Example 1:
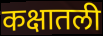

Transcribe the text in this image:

कक्षातली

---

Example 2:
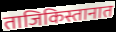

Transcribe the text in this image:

ताजिकिस्तानात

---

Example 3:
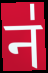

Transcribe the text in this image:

न॑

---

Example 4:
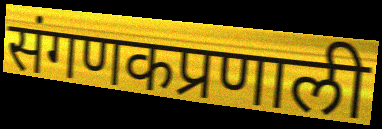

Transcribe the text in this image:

संगणकप्रणाली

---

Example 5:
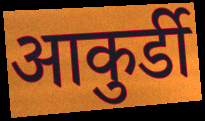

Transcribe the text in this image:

आकुर्डी